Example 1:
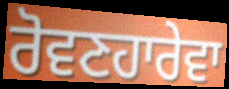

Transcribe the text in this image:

ਰੋਵਣਹਾਰੇਵਾ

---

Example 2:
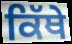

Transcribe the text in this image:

ਕਿੱਥੇ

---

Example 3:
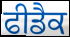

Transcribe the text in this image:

ਫੀਡੈਕ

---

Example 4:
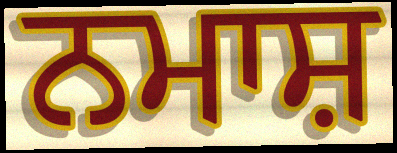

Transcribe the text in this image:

ਨਮਾਸ਼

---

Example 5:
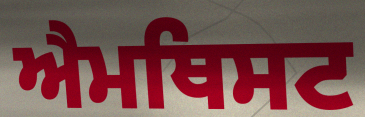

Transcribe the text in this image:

ਐਮਥਿਸਟ